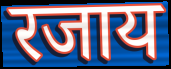
रजाय